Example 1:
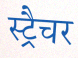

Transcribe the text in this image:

स्ट्रैचर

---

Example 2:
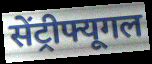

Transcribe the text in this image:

सेंट्रीफ्यूगल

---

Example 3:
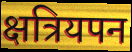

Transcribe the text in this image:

क्षत्रियपन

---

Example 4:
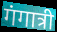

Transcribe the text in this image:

गंगात्री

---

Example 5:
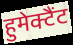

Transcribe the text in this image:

हुमेक्टैंट